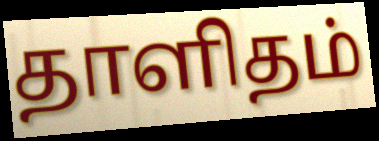
தாளிதம்